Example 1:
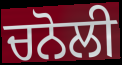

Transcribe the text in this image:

ਚਨੋਲੀ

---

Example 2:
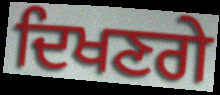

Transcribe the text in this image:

ਦਿਖਣਗੇ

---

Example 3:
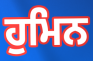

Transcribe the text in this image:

ਹੁਮਿਨ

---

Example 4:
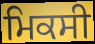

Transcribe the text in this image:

ਮਿਕਸੀ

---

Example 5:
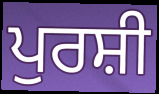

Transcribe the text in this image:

ਪੁਰਸ਼ੀ